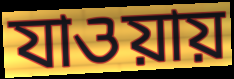
যাওয়ায়